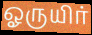
ஓருயிர்